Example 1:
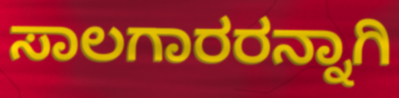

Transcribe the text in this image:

ಸಾಲಗಾರರನ್ನಾಗಿ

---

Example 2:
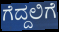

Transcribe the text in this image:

ಗೆದ್ದಲಿಗೆ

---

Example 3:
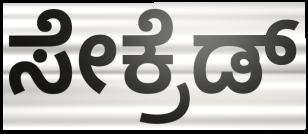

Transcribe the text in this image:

ಸೇಕ್ರೆಡ್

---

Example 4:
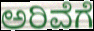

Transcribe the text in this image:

ಅರಿವೆಗೆ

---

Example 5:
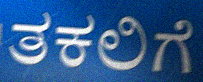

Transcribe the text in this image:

ತಕಲಿಗೆ